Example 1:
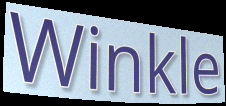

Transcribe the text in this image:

Winkle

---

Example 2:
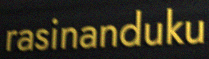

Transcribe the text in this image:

rasinanduku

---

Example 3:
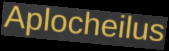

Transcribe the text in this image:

Aplocheilus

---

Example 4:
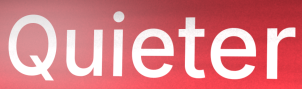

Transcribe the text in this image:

Quieter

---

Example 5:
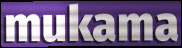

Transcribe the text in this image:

mukama